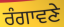
ਰੰਗਾਵਣੇ